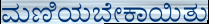
ಮಣಿಯಬೇಕಾಯಿತು